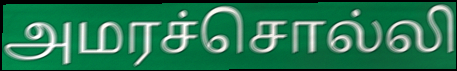
அமரச்சொல்லி